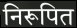
निरूपित